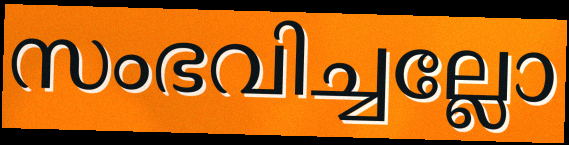
സംഭവിച്ചല്ലോ